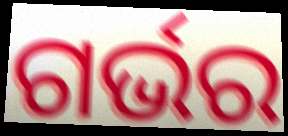
ଗର୍ଭର